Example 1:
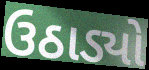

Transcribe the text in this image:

ઉઠાડ્યો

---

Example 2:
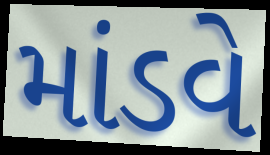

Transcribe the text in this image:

માંડવે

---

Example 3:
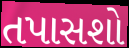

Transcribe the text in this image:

તપાસશો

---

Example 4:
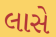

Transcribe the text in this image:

લાસે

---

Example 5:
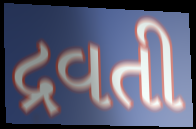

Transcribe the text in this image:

દ્રવતી